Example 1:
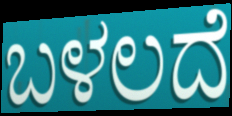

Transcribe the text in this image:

ಬಳಲದೆ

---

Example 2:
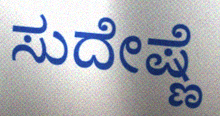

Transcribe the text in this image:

ಸುದೇಷ್ಣೆ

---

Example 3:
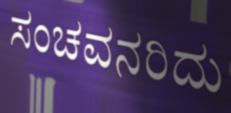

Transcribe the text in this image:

ಸಂಚವನರಿದು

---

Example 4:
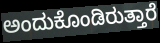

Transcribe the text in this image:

ಅಂದುಕೊಂಡಿರುತ್ತಾರೆ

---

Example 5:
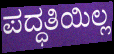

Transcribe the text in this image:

ಪದ್ಧತಿಯಿಲ್ಲ